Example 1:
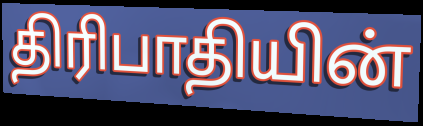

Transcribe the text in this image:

திரிபாதியின்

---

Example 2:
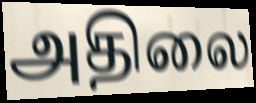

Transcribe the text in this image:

அதிலை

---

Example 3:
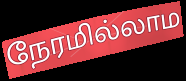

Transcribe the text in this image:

நேரமில்லாம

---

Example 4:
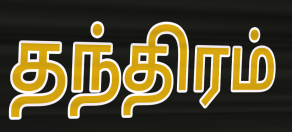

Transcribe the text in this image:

தந்திரம்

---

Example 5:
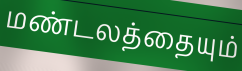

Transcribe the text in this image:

மண்டலத்தையும்